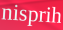
nisprih